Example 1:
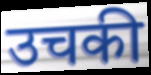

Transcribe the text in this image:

उचकी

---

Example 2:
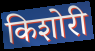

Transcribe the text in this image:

किशोरी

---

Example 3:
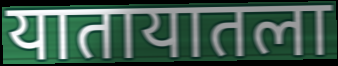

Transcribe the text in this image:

यातायातला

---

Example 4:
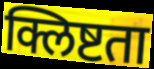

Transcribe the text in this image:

क्लिष्टता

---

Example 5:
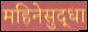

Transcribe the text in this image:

महिनेसुद्धा